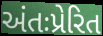
અંતઃપ્રેરિત